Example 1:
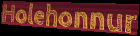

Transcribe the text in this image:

Holehonnur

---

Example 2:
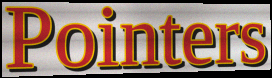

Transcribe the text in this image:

Pointers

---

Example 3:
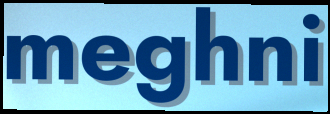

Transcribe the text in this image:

meghni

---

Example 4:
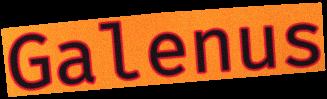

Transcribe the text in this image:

Galenus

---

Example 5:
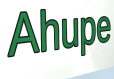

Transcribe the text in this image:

Ahupe